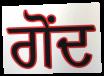
ਗੋਂਦ